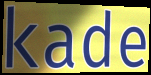
kade